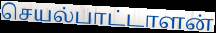
செயல்பாட்டாளன்